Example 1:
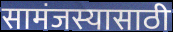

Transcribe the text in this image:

सामंजस्यासाठी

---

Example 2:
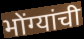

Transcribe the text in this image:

भोंग्यांची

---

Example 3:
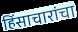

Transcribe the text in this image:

हिंसाचारांचा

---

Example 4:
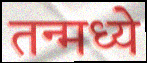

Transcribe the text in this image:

तन्मध्ये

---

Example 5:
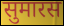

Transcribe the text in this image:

सुमारस